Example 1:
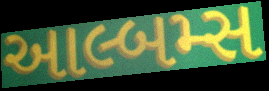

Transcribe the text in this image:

આલ્બમ્સ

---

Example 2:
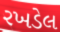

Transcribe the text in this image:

રખડેલ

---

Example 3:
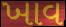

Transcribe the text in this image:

ખાવ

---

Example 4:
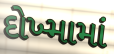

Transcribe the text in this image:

દોખ્મામાં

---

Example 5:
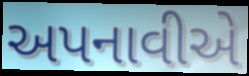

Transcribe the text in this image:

અપનાવીએ